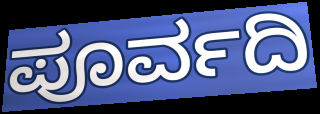
ಪೂರ್ವದಿ